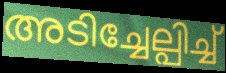
അടിച്ചേല്പിച്ച്